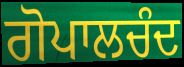
ਗੋਪਾਲਚੰਦ